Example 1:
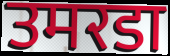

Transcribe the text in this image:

उमरडा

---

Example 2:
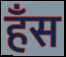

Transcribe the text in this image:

हँस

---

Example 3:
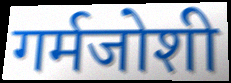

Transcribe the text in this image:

गर्मजोशी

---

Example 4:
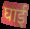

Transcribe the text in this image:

घाई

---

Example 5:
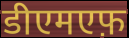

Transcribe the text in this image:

डीएमएफ़